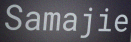
Samajie